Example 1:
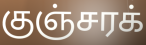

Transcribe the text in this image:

குஞ்சரக்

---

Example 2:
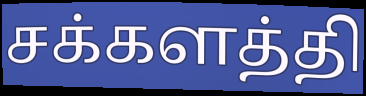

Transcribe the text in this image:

சக்களத்தி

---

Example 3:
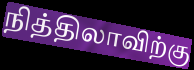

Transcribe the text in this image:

நித்திலாவிற்கு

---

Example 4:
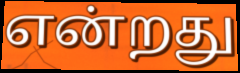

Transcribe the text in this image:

என்றது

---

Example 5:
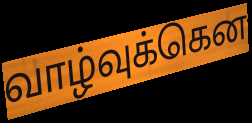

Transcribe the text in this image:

வாழ்வுக்கென